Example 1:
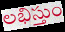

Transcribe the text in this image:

లభిస్తుం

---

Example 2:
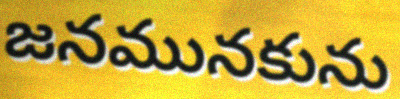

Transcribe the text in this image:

జనమునకును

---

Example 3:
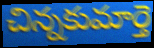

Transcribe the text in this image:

చిన్నకుమార్తె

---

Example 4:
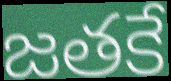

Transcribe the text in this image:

జతకే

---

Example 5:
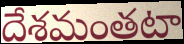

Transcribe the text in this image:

దేశమంతటా